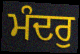
ਮੰਦਰੁ